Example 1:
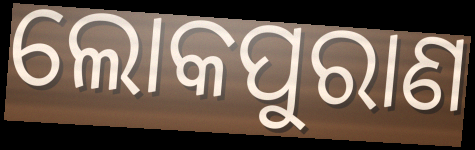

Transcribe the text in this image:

ଲୋକପୁରାଣ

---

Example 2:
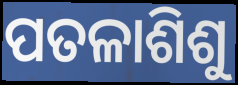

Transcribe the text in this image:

ପତଳାଶିଶୁ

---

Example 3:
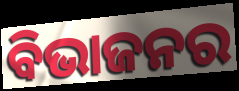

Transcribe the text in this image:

ବିଭାଜନର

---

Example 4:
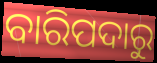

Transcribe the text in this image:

ବାରିପଦାରୁ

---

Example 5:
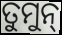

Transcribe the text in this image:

ତୁମୁନ୍